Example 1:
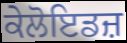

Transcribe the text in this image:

ਕੇਲੋਇਡਜ਼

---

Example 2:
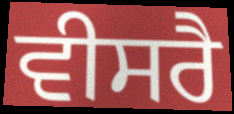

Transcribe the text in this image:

ਵੀਸਰੈ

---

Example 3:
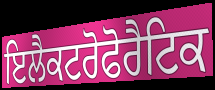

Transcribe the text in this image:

ਇਲੈਕਟਰੋਫੋਰੈਟਿਕ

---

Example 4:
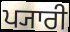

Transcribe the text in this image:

ਪ੍ਯਾਰੀ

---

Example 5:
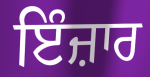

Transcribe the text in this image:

ਇੰਜ਼ਾਰ